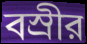
বস্রীর